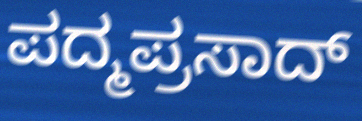
ಪದ್ಮಪ್ರಸಾದ್